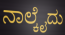
ನಾಲ್ಕೈದು